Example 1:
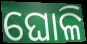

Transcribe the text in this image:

ଘୋଳି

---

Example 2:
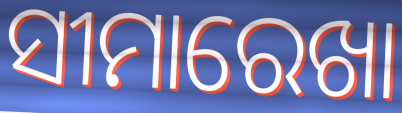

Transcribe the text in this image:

ସୀମାରେଖା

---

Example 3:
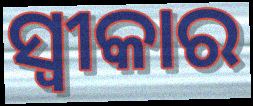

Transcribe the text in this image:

ସ୍ୱୀକାର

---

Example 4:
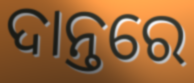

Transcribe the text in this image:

ଦାନ୍ତରେ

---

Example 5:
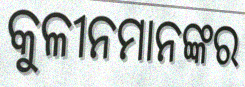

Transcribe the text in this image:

କୁଳୀନମାନଙ୍କର